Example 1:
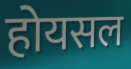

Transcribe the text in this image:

होयसल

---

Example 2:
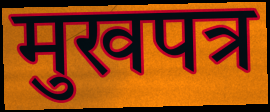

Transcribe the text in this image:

मुखपत्र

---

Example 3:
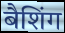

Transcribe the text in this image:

बैशिंग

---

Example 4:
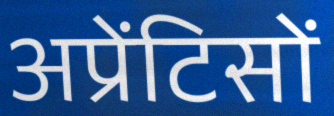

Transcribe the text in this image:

अप्रेंटिसों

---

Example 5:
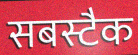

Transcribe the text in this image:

सबस्टैक